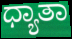
ಧ್ಯಾತಾ